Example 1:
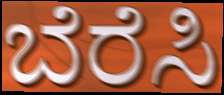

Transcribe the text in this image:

ಬೆರೆಸಿ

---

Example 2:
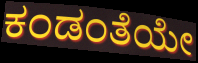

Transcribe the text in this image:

ಕಂಡಂತೆಯೇ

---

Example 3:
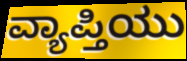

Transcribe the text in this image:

ವ್ಯಾಪ್ತಿಯು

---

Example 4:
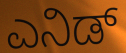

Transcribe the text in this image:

ಎನಿಡ್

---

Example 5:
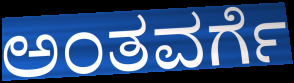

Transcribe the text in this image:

ಅಂತವರ್ಗೆ